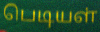
பெடியள்